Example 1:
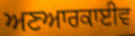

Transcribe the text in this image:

ਅਣਆਰਕਾਈਵ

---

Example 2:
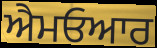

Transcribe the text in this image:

ਐਮਓਆਰ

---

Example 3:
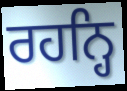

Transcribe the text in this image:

ਰਹਨ੍ਹਿ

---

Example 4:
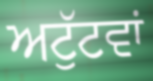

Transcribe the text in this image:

ਅਟੁੱਟਵਾਂ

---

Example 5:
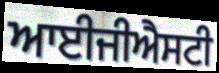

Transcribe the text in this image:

ਆਈਜੀਐਸਟੀ